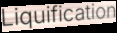
Liquification